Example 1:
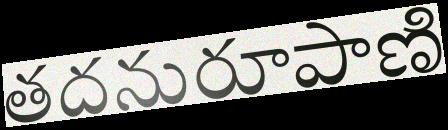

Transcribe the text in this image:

తదనురూపాణి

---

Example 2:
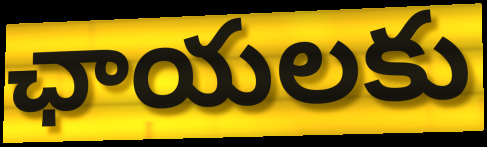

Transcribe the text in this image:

ఛాయలకు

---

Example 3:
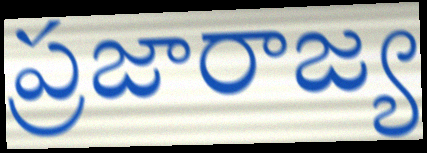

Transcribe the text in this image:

ప్రజారాజ్య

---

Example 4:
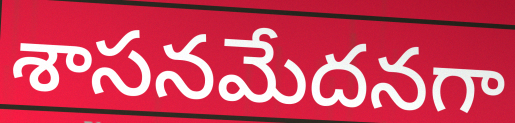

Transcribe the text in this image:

శాసనమేదనగా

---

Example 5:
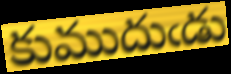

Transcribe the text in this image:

కుముదుఁడు